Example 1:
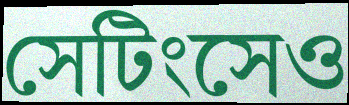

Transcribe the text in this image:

সেটিংসেও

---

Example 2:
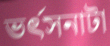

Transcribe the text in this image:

ভর্ৎসনাটা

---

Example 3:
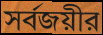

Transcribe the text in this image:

সর্বজয়ীর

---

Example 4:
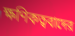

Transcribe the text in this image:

ক্ষণিকত্ববাদের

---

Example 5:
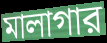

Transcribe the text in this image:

মালাগার